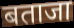
बताजा